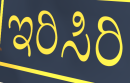
ಇರಿಸಿರಿ